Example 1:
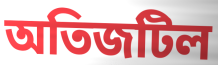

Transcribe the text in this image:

অতিজটিল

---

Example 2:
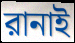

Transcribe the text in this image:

রানাই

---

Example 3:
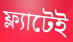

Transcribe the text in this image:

ফ্ল্যাটেই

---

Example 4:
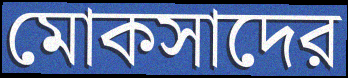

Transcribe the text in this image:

মোকসাদের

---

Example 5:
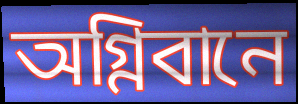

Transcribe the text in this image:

অগ্নিবানে